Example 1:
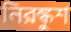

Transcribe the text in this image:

নিরঙ্কুশ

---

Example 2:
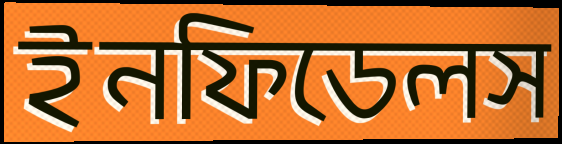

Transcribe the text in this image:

ইনফিডেলস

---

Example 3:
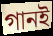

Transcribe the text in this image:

গানই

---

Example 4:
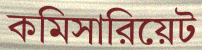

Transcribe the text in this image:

কমিসারিয়েট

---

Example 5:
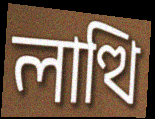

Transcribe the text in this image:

লাত্থি